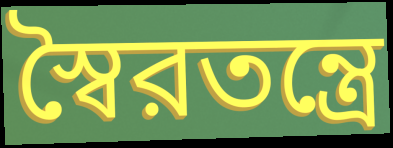
স্বৈরতন্ত্রে